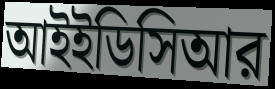
আইইডিসিআর